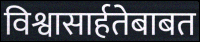
विश्वासार्हतेबाबत